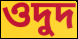
ওদুদ